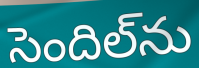
సెందిల్‌ను